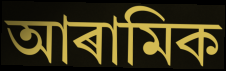
আৰামিক